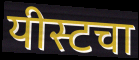
यीस्टचा